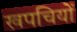
खपचियों